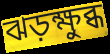
ঝড়ক্ষুব্ধ